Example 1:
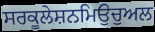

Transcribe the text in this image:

ਸਰਕੂਲੇਸ਼ਨਮਿਉਚੁਅਲ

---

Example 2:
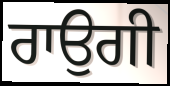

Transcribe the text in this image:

ਰਾਉਗੀ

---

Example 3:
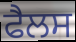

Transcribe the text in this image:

ਫੈਲਸ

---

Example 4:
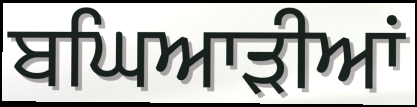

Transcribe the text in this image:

ਬਘਿਆੜੀਆਂ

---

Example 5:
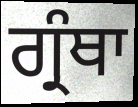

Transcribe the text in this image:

ਗ੍ਰੰਥਾ